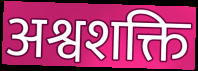
अश्वशक्ति